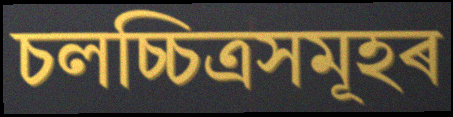
চলচ্চিত্ৰসমূহৰ